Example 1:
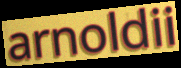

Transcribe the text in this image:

arnoldii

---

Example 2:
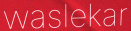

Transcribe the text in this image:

waslekar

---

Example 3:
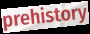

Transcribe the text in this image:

prehistory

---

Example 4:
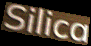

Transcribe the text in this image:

Silica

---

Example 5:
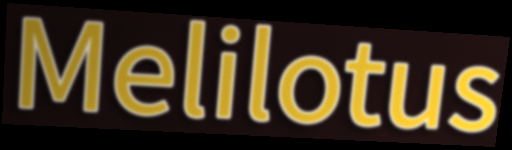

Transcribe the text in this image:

Melilotus